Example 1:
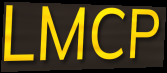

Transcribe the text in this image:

LMCP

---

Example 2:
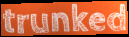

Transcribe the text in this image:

trunked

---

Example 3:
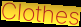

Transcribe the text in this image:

Clothes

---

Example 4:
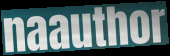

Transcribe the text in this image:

naauthor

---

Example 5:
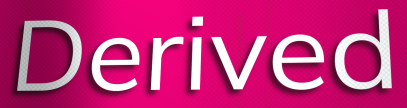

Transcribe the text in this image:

Derived